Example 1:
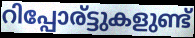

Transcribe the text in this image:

റിപ്പോര്ട്ടുകളുണ്ട്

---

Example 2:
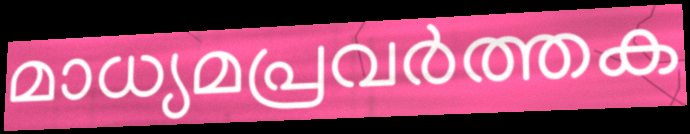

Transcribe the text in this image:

മാധ്യമപ്രവർത്തക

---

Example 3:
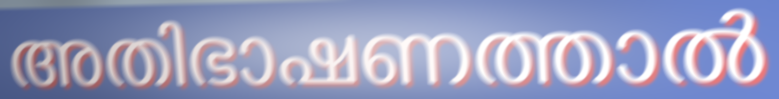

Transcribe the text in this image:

അതിഭാഷണത്താൽ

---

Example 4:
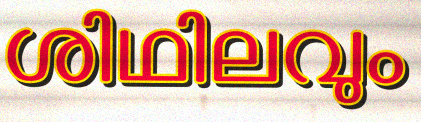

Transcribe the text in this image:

ശിഥിലവും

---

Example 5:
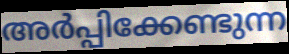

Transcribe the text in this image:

അർപ്പിക്കേണ്ടുന്ന